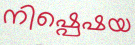
നിഷ്പെഷയ